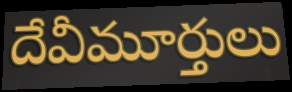
దేవీమూర్తులు